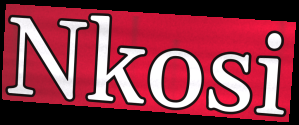
Nkosi